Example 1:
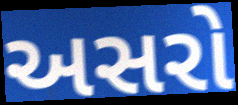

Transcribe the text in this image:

અસરો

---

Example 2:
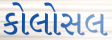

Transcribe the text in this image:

કોલોસલ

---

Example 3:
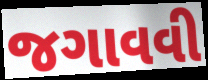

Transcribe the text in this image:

જગાવવી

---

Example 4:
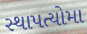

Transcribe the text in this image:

સ્થાપત્યોમા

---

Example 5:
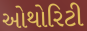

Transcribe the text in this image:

ઓથોરિટી